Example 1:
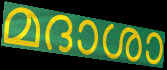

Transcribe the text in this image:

മദാശാ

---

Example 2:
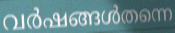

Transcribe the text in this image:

വർഷങ്ങൾതന്നെ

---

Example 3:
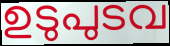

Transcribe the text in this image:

ഉടുപുടവ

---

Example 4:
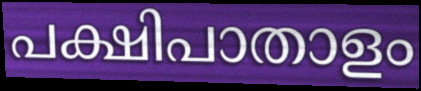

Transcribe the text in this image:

പക്ഷിപാതാളം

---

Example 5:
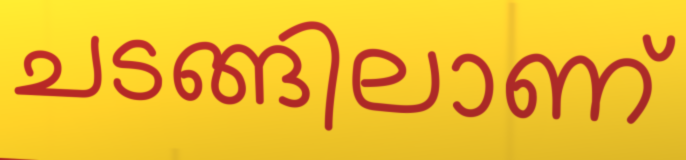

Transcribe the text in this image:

ചടങ്ങിലാണ്